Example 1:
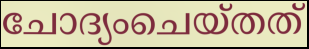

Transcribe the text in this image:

ചോദ്യംചെയ്തത്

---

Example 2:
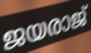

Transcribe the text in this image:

ജയരാജ്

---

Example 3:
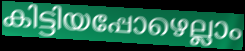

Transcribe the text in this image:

കിട്ടിയപ്പോഴെല്ലാം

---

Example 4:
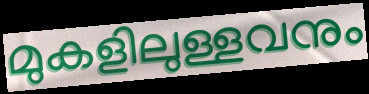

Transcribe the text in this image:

മുകളിലുള്ളവനും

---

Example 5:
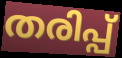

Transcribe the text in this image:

തരിപ്പ്